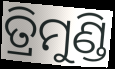
ତ୍ରିମୁଣ୍ଡି